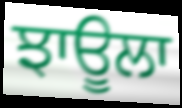
ਝਾਊਲਾ